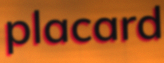
placard